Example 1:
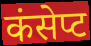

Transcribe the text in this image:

कंसेप्ट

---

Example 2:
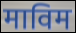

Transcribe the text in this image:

माविम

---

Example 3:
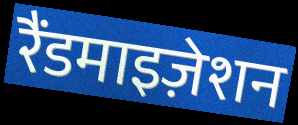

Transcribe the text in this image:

रैंडमाइज़ेशन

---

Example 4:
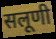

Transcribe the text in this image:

सलूणी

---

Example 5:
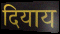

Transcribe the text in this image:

दियाय